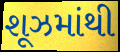
શૂઝમાંથી